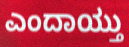
ಎಂದಾಯ್ತು